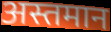
अस्तमान